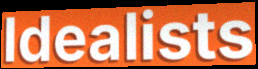
Idealists